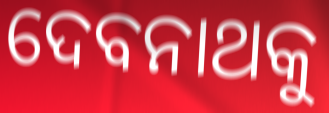
ଦେବନାଥକୁ